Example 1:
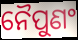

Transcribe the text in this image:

ନୈପୁଣଂ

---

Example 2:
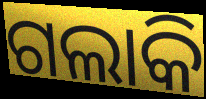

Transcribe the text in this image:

ଗଲାକି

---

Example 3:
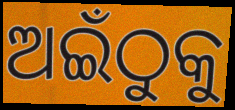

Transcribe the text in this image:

ଅଇଁଠୁକୁ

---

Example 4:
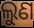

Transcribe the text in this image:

ଲୁଣ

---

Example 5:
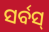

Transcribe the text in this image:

ସର୍ବସ୍